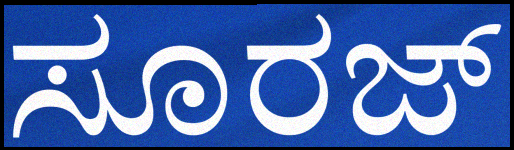
ಸೂರಜ್